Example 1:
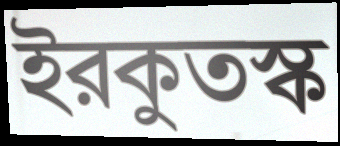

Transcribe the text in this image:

ইরকুতস্ক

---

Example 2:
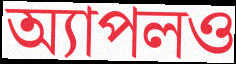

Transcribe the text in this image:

অ্যাপলও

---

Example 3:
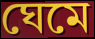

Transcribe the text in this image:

ঘেমে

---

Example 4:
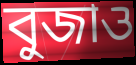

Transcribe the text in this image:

বুজাও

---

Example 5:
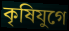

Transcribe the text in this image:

কৃষিযুগে